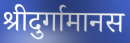
श्रीदुर्गामानस